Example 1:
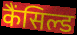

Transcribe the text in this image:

कैंसिल्ड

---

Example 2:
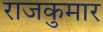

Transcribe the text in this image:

राजकुमार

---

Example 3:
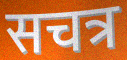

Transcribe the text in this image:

सचत्र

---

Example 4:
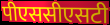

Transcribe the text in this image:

पीएससीएसटी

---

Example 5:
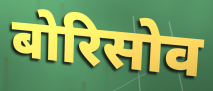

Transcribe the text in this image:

बोरिसोव